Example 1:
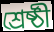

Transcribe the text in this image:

শ্রেষ্ঠী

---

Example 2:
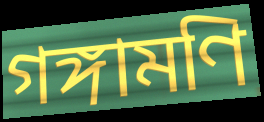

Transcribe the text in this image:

গঙ্গামণি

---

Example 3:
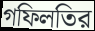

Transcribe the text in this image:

গফিলতির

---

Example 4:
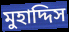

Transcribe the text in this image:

মুহাদ্দিস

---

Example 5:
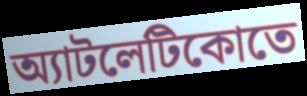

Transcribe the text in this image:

অ্যাটলেটিকোতে